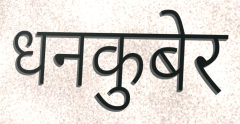
धनकुबेर